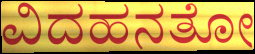
ವಿದಹನತೋ